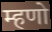
म्हणो